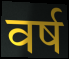
वर्ष